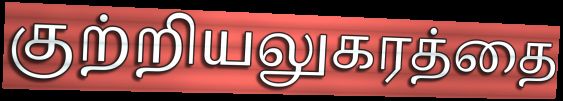
குற்றியலுகரத்தை